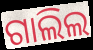
ଗାଲିଲ